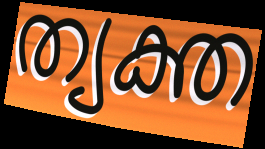
ത്യക്ത